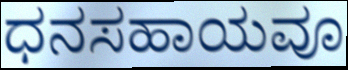
ಧನಸಹಾಯವೂ